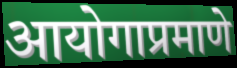
आयोगाप्रमाणे